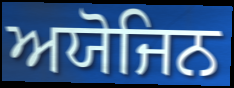
ਅਯੋਜਿਨ